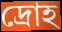
দ্রোহ